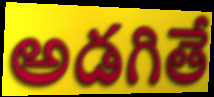
అడగితే